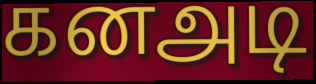
கனஅடி